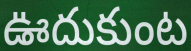
ఊదుకుంట